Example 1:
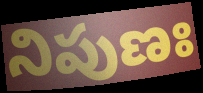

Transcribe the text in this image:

నిపుణః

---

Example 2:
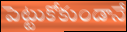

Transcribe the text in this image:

పెట్టుకోకుండానే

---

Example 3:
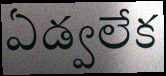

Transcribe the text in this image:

ఏడ్వలేక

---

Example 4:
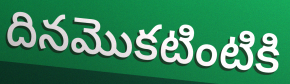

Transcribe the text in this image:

దినమొకటింటికి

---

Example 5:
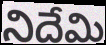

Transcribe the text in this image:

నిదేమి